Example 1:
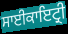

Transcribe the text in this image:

ਸਾਈਕਾਇਟ੍ਰੀ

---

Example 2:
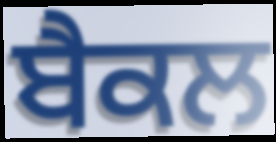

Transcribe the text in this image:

ਬੈਕਲ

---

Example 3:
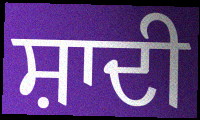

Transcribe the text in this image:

ਸ਼ਾਦੀ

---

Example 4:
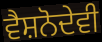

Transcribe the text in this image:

ਵੈਸ਼ਨੋਦੇਵੀ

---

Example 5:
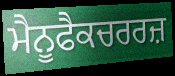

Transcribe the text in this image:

ਮੈਨੂਫੈਕਚਰਰਜ਼